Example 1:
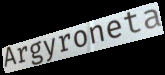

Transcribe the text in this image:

Argyroneta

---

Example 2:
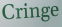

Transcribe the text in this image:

Cringe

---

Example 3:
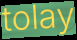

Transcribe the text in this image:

tolay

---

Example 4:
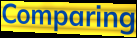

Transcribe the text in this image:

Comparing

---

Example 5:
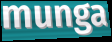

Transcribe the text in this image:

munga